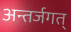
अन्तर्जगत्